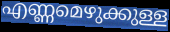
എണ്ണമെഴുക്കുള്ള